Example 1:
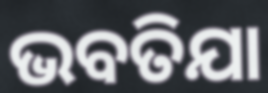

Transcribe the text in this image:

ଭବତିଯା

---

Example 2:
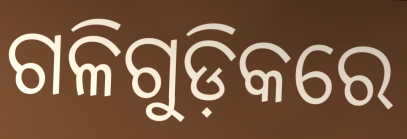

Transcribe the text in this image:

ଗଳିଗୁଡ଼ିକରେ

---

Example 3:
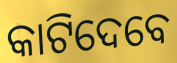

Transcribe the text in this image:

କାଟିଦେବେ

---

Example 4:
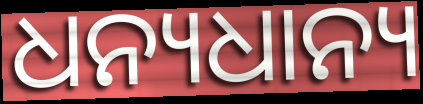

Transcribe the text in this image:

ଧନ୍ୟଧାନ୍ୟ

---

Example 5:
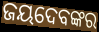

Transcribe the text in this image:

ଜୟଦେବଙ୍କର